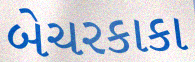
બેચરકાકા